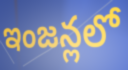
ఇంజన్లలో